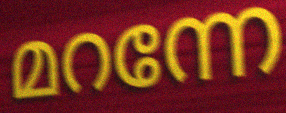
മറന്നേ